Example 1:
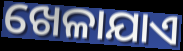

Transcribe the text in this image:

ଖେଳାଯାଏ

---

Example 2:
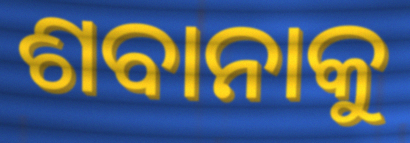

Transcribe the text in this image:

ଶବାନାକୁ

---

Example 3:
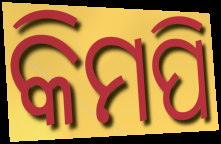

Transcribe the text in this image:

କିମପି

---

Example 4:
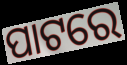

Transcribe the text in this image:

ପାଟରେ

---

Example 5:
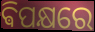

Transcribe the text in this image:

ଵିପକ୍ଷରେ